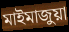
মাইমাজুয়া